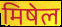
मिषेल